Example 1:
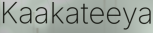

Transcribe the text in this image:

Kaakateeya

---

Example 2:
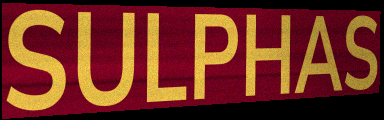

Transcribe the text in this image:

SULPHAS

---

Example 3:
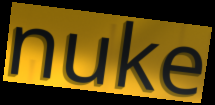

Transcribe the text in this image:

nuke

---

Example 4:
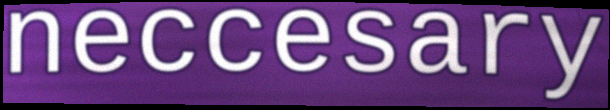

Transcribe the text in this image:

neccesary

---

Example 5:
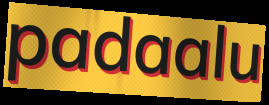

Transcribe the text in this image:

padaalu